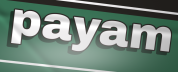
payam